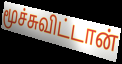
மூச்சுவிட்டான்